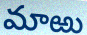
మాఱు